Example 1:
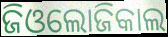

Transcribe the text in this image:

ଜିଓଲୋଜିକାଲ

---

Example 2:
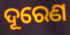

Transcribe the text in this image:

ଦୂରେଣ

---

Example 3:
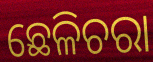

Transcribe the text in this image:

ଛେଳିଚରା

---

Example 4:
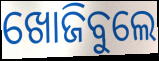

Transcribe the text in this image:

ଖୋଜିବୁଲେ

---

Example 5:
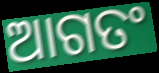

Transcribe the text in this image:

ଆଗତଂ